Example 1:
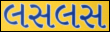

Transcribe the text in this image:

લસલસ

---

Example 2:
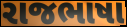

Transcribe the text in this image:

રાજભાષા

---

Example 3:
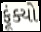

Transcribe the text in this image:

ફૂંક્યો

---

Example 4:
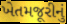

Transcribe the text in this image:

ખેતમજૂરીનું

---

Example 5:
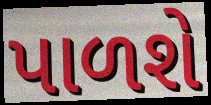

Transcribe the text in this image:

પાળશે